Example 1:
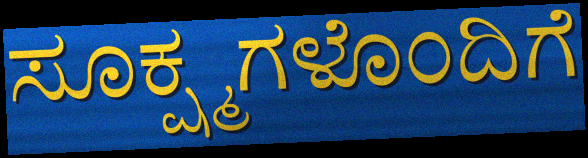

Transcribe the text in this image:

ಸೂಕ್ಷ್ಮಗಳೊಂದಿಗೆ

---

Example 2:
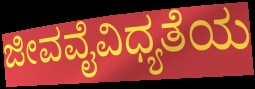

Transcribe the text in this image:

ಜೀವವೈವಿಧ್ಯತೆಯ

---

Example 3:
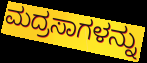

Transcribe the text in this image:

ಮದ್ರಸಾಗಳನ್ನು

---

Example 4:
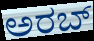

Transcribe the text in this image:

ಅರಬ್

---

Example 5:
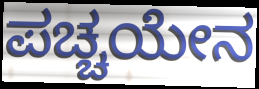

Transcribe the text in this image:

ಪಚ್ಚಯೇನ